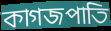
কাগজপাতি